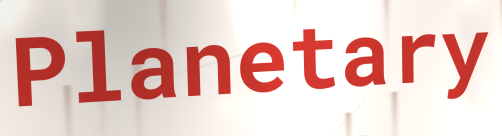
Planetary